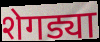
शेगड्या